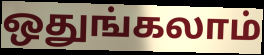
ஒதுங்கலாம்